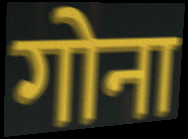
गोना